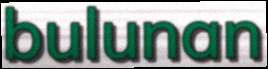
bulunan